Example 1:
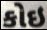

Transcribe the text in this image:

કોઇ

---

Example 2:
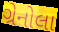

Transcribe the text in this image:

ગ્રેનોલા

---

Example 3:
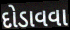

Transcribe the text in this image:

દોડાવવા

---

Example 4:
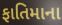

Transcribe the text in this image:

ફાતિમાના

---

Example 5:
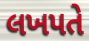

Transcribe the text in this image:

લખપતે